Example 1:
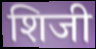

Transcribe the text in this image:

शिजी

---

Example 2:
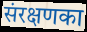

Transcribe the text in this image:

संरक्षणका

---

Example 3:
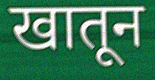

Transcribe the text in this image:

खातून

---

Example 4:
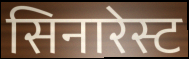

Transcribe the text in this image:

सिनारेस्ट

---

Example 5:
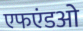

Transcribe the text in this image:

एफएंडओ